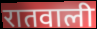
रातवाली